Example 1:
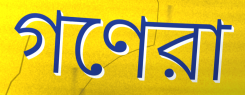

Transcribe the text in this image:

গণেরা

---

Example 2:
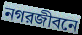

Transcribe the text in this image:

নগরজীবনে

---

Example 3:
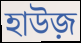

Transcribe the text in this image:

হাউজ়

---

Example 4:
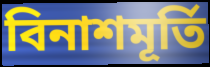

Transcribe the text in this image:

বিনাশমূর্তি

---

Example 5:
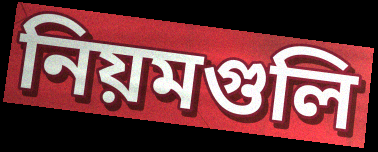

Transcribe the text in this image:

নিয়মগুলি